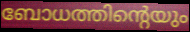
ബോധത്തിന്റെയും